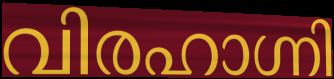
വിരഹാഗ്നി